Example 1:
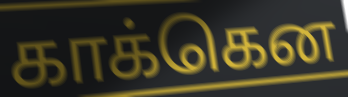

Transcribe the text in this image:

காக்கென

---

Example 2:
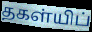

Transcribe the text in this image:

தகள்யிப்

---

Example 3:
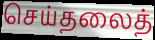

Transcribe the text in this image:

செய்தலைத்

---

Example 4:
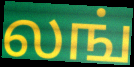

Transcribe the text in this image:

லங்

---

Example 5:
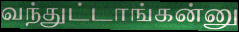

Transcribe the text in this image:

வந்துட்டாங்கன்னு